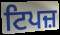
ਟਿਪਜ਼